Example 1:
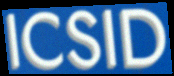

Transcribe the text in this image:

ICSID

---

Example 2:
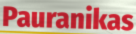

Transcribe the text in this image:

Pauranikas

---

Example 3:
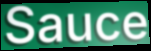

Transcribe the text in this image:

Sauce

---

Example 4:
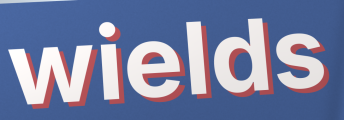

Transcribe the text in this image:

wields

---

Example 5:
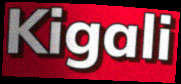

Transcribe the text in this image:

Kigali